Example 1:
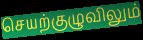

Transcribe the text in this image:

செயற்குழுவிலும்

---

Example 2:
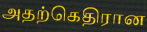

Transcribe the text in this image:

அதற்கெதிரான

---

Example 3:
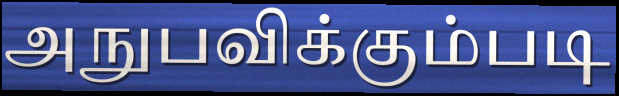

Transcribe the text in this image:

அநுபவிக்கும்படி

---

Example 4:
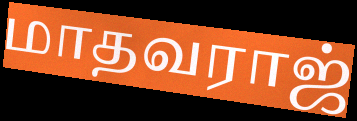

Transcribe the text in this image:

மாதவராஜ்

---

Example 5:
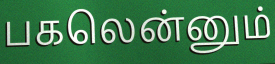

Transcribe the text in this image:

பகலென்னும்